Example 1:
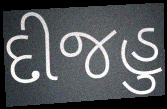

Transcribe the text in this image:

દીજહુ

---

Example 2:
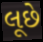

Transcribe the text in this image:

લૂછે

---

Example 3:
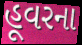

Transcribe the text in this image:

હૂવરના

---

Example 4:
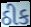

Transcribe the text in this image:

ઠીક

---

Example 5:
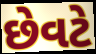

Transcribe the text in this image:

છેવટે